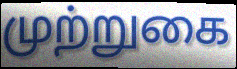
முற்றுகை